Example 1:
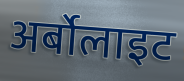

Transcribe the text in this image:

अर्बोलाइट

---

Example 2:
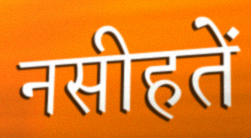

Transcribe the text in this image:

नसीहतें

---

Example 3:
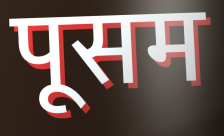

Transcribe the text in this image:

पूसम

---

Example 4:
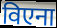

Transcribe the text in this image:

विएना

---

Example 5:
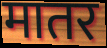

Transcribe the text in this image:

मातर